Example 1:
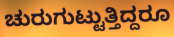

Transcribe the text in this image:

ಚುರುಗುಟ್ಟುತ್ತಿದ್ದರೂ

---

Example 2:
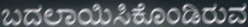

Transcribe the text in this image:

ಬದಲಾಯಿಸಿಕೊಂಡಿರುವ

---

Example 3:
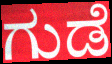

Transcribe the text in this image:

ಗುಡೆ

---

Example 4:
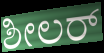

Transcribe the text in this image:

ಶೀಲರ್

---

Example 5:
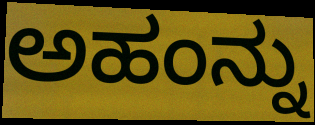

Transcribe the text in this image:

ಅಹಂನ್ನು